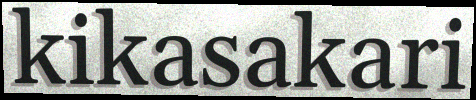
kikasakari